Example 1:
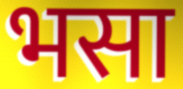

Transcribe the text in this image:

भसा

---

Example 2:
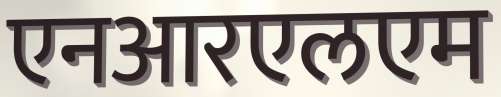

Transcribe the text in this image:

एनआरएलएम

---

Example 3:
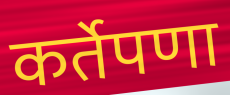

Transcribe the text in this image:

कर्तेपणा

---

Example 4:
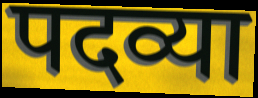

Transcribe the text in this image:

पदव्या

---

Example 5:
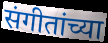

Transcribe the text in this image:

संगीतांच्या